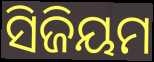
ସିଜିୟମ